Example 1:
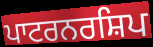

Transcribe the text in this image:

ਪਾਟਰਨਰਸ਼ਿਪ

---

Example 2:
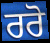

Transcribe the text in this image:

ਰਰੋ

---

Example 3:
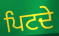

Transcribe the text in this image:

ਪਿਟਦੇ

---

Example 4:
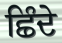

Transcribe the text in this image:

ਛਿੰਦੇ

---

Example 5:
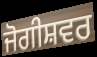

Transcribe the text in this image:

ਜੋਗੀਸ਼ਵਰ